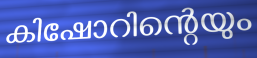
കിഷോറിന്റെയും